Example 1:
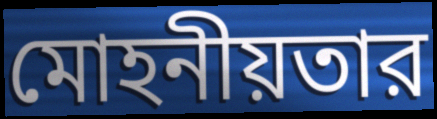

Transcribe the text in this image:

মোহনীয়তার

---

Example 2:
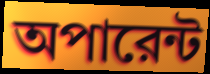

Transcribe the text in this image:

অপারেন্ট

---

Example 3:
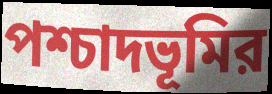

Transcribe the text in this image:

পশ্চাদভূমির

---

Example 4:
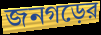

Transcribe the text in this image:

জনগড়ের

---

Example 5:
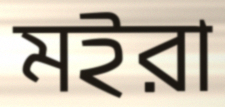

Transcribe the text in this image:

মইরা